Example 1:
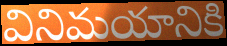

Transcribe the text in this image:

వినిమయానికి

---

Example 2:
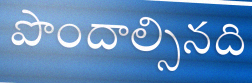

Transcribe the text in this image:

పొందాల్సినది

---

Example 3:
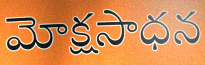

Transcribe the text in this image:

మోక్షసాధన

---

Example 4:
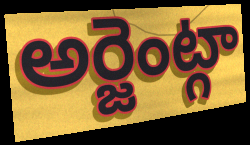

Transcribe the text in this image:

అర్జెంట్గా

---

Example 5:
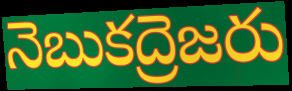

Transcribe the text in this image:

నెబుకద్రెజరు